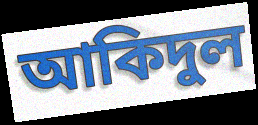
আকিদুল